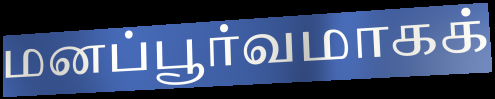
மனப்பூர்வமாகக்